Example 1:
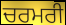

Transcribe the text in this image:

ਚਰਮਰੀ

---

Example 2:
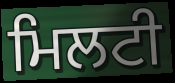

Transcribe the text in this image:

ਮਿਲਟੀ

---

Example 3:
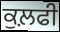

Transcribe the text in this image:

ਕੁਲ਼ਫੀ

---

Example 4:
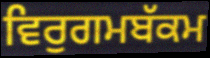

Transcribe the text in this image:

ਵਿਰੁਗਮਬੱਕਮ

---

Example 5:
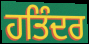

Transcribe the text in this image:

ਹਤਿੰਦਰ